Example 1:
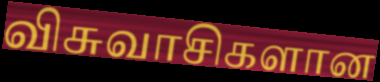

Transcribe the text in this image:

விசுவாசிகளான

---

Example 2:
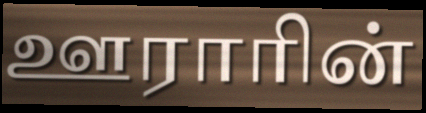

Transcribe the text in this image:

ஊராரின்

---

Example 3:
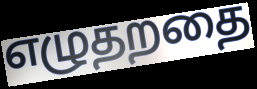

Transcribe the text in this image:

எழுதறதை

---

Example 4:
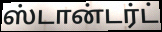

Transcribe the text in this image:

ஸ்டான்டர்ட்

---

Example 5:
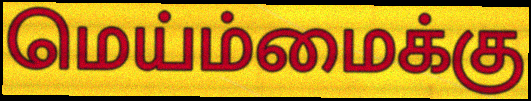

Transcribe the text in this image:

மெய்ம்மைக்கு